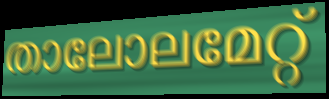
താലോലമേറ്റ്